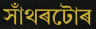
সাঁথৰটোৰ